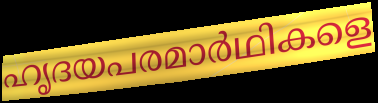
ഹൃദയപരമാർഥികളെ